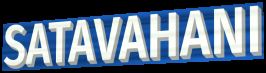
SATAVAHANI